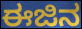
ಈಜಿನ